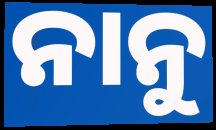
ନାନୁ